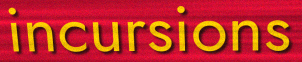
incursions